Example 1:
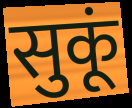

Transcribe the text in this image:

सुकूं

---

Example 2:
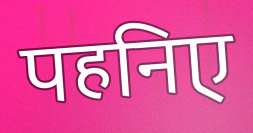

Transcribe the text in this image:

पहनिए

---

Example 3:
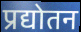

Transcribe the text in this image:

प्रद्योतन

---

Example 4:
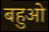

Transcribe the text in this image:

बहुओ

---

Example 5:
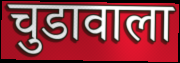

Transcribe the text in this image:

चुडावाला